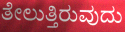
ತೇಲುತ್ತಿರುವುದು